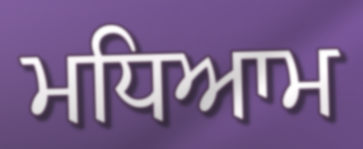
ਮਧਿਆਮ